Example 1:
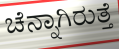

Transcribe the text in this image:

ಚೆನ್ನಾಗಿರುತ್ತೆ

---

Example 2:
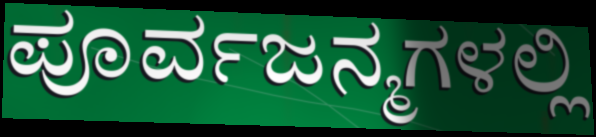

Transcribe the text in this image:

ಪೂರ್ವಜನ್ಮಗಳಲ್ಲಿ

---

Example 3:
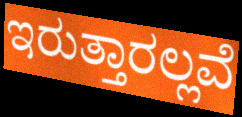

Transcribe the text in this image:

ಇರುತ್ತಾರಲ್ಲವೆ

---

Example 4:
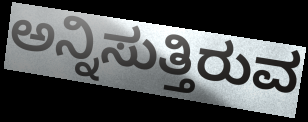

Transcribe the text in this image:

ಅನ್ನಿಸುತ್ತಿರುವ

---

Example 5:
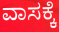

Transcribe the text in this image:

ವಾಸಕ್ಕೆ